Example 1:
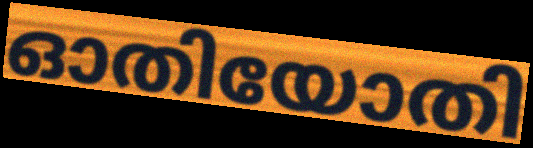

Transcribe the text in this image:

ഓതിയോതി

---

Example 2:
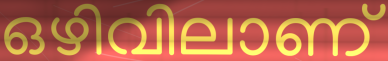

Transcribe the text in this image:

ഒഴിവിലാണ്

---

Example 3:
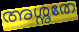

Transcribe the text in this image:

അശ്നുതേ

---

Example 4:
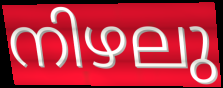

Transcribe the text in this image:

നിഴലു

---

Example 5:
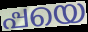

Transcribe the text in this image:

പ്പയെ